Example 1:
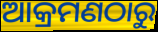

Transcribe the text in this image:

ଆକ୍ରମଣଠାରୁ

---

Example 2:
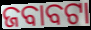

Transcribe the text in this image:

ଜବାବଟା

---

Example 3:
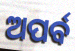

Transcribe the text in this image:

ଅପର୍ବ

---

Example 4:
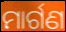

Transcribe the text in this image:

ମାର୍ଗଣ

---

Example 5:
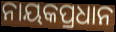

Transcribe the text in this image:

ନାୟକପ୍ରଧାନ